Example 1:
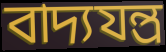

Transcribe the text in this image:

বাদ্যযন্ত্ৰ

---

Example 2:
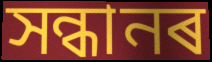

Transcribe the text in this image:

সন্ধানৰ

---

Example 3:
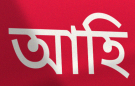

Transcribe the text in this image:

আহি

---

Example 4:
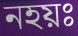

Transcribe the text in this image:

নহয়ঃ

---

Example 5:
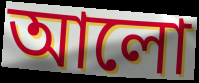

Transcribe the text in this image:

আলো